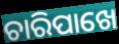
ଚାରିପାଖେ